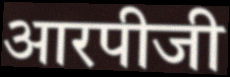
आरपीजी